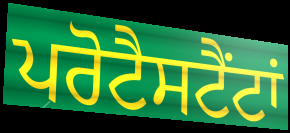
ਪਰੋਟੈਸਟੈਂਟਾਂ